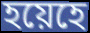
হয়েহে